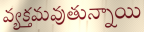
వ్యక్తమవుతున్నాయి